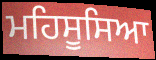
ਮਹਿਸੂਸਿਆ